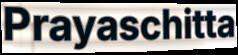
Prayaschitta